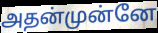
அதன்முன்னே